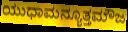
ಯುಧಾಮನ್ಯೂತ್ತಮೌಜ